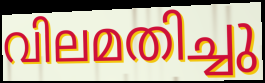
വിലമതിച്ചു